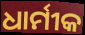
ଧାର୍ମୀକ